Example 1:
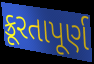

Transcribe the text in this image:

ક્રૂરતાપૂર્ણ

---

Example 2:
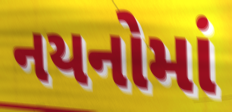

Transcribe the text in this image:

નયનોમાં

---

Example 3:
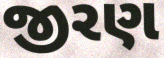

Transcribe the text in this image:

જીરણ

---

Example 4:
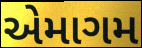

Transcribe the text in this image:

એમાગમ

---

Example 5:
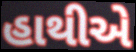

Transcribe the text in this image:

હાથીએ